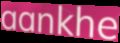
aankhe